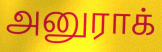
அனுராக்